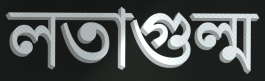
লতাগুল্ম